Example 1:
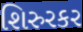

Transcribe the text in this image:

શિરુરકર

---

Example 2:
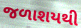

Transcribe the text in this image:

જળાશયથી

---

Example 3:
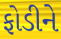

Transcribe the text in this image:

ફોડીને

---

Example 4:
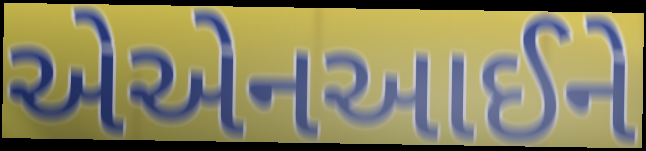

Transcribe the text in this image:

એએનઆઈને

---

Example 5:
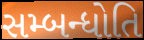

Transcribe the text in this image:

સમ્બન્ધોતિ